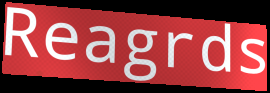
Reagrds